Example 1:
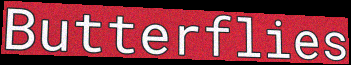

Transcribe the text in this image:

Butterflies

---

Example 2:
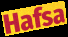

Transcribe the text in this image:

Hafsa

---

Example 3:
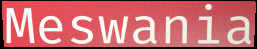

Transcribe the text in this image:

Meswania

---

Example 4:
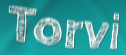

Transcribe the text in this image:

Torvi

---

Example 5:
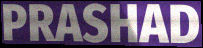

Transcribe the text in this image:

PRASHAD